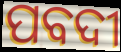
ପବଦୀ